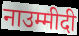
नाउम्मीदी